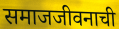
समाजजीवनाची